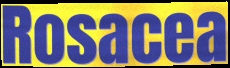
Rosacea